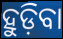
ହୁଡ଼ିବା